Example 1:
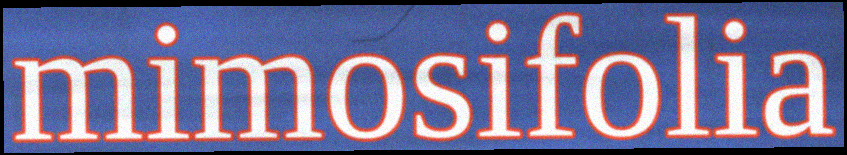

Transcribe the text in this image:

mimosifolia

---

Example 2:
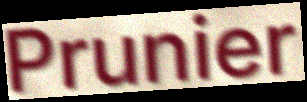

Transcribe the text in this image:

Prunier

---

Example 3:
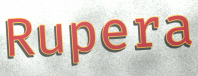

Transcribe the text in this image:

Rupera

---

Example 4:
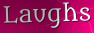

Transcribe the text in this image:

Laughs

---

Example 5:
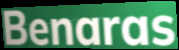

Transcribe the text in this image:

Benaras